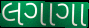
લગાગા